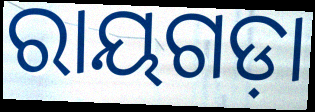
ରାୟଗଡ଼ା